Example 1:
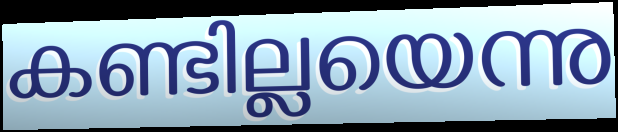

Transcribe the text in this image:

കണ്ടില്ലയെന്നു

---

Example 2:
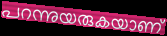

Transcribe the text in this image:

പറന്നുയരുകയാണ്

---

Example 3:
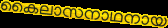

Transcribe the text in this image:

കൈലാസനാഥനായ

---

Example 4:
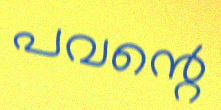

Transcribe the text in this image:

പവന്റെ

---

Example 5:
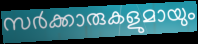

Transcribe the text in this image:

സർക്കാരുകളുമായും